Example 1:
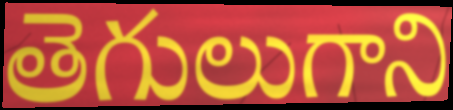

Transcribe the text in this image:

తెగులుగాని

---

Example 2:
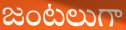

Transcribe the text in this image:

జంటలుగా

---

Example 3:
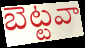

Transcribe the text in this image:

బెట్టవా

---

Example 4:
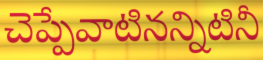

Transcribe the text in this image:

చెప్పేవాటినన్నిటినీ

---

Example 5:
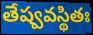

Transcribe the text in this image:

తేష్వవస్థితః